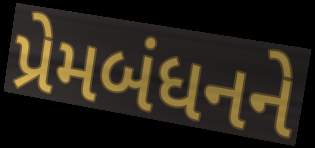
પ્રેમબંધનને